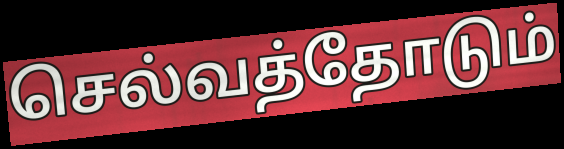
செல்வத்தோடும்